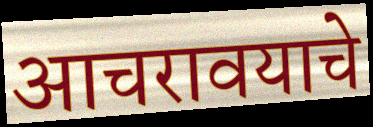
आचरावयाचे